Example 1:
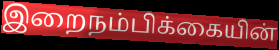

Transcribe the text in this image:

இறைநம்பிக்கையின்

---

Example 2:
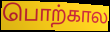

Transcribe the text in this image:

பொற்கால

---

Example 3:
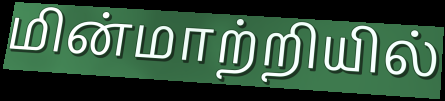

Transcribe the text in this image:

மின்மாற்றியில்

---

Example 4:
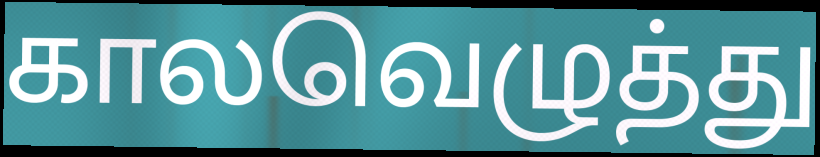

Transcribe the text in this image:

காலவெழுத்து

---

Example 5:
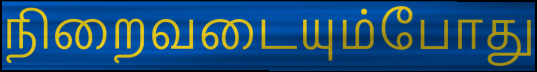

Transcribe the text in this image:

நிறைவடையும்போது